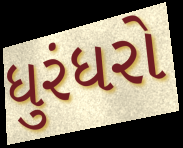
ધુરંધરો